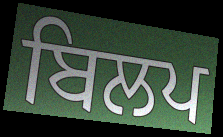
ਬਿਲਪ